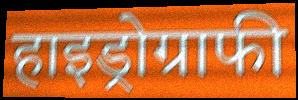
हाइड्रोग्राफी